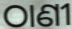
ଠାଣୀ